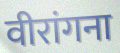
वीरांगना